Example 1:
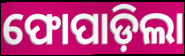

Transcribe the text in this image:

ଫୋପାଡ଼ିଲା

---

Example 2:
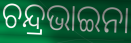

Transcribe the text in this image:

ଚନ୍ଦ୍ରଭାଇନା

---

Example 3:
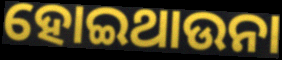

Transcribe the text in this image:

ହୋଇଥାଉନା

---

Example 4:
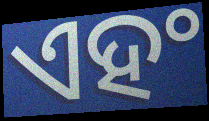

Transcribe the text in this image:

ଏହଂ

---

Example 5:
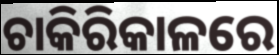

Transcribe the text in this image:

ଚାକିରିକାଳରେ